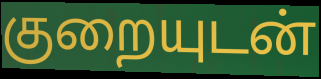
குறையுடன்